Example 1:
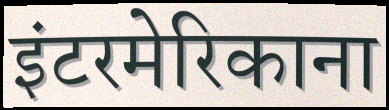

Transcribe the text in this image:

इंटरमेरिकाना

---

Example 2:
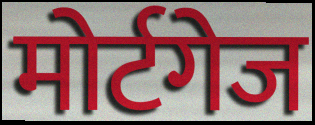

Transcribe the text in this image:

मोर्टगेज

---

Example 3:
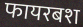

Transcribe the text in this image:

फायरबश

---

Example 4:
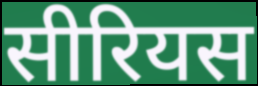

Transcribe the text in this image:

सीरियस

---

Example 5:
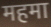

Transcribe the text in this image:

महमा